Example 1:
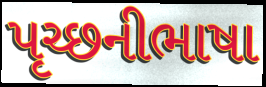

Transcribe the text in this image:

પૃચ્છનીભાષા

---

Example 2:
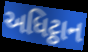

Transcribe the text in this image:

અધિટ્ઠાન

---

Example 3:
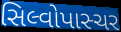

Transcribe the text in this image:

સિલ્વોપાસ્ચર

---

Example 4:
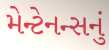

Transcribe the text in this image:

મેન્ટેનન્સનું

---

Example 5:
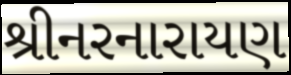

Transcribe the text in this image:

શ્રીનરનારાયણ